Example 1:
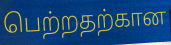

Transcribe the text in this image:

பெற்றதற்கான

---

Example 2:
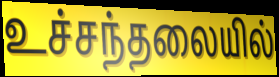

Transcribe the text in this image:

உச்சந்தலையில்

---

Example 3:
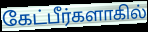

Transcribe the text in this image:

கேட்பீர்களாகில்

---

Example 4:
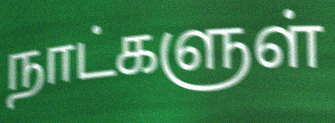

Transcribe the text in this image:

நாட்களுள்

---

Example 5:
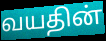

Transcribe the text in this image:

வயதின்